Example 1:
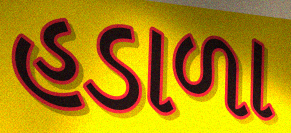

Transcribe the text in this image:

હડાળા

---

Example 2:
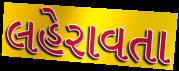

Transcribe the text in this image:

લહેરાવતા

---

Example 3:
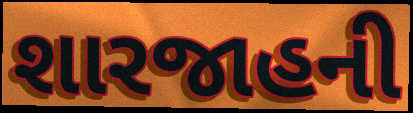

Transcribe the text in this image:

શારજાહની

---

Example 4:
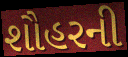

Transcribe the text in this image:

શૌહરની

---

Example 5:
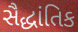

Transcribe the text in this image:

સૈદ્ધાંતિક